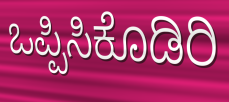
ಒಪ್ಪಿಸಿಕೊಡಿರಿ